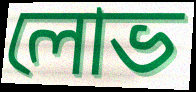
লোভ